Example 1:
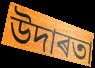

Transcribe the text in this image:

উদাৰতা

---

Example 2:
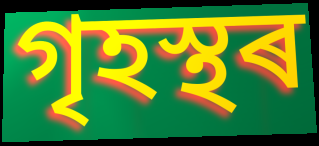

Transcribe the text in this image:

গৃহস্থৰ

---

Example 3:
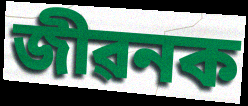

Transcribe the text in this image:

জীৱনক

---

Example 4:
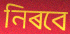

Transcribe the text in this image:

নিৰবে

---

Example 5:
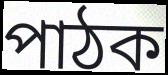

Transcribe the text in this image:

পাঠক